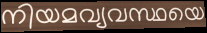
നിയമവ്യവസ്ഥയെ